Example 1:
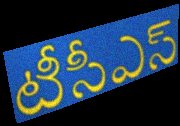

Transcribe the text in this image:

టీసీఎస్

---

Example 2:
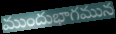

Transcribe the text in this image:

ముందుభాగమున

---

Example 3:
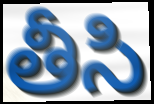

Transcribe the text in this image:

తీసి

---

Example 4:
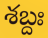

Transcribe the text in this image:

శబ్దః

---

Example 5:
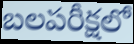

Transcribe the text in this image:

బలపరీక్షలో